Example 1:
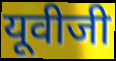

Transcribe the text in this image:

यूवीजी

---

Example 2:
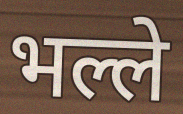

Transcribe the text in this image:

भल्ले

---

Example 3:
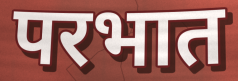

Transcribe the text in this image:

परभात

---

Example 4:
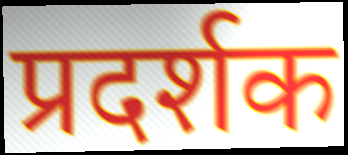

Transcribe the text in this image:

प्रदर्शक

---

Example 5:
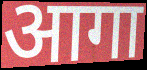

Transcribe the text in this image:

आगा